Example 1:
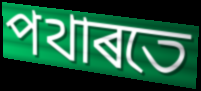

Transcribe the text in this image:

পথাৰতে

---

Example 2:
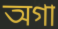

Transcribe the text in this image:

অগা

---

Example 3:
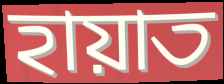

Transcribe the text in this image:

হায়াত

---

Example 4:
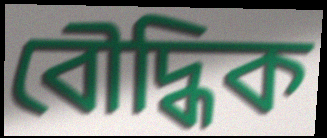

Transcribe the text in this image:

বৌদ্ধিক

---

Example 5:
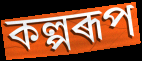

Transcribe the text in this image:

কল্পৰূপ